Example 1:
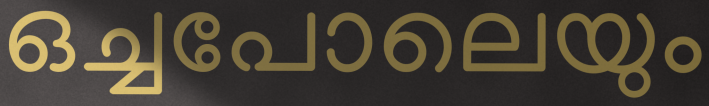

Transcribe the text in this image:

ഒച്ചപോലെയും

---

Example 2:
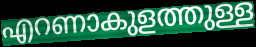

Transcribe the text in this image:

എറണാകുളത്തുള്ള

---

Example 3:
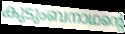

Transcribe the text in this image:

കുടുംബനാഥന്റെ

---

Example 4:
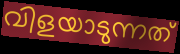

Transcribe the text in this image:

വിളയാടുന്നത്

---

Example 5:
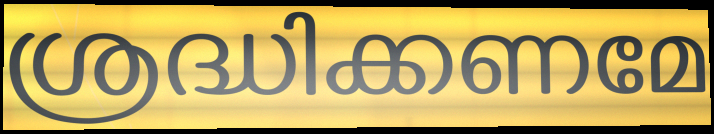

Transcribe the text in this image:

ശ്രദ്ധിക്കണമേ